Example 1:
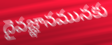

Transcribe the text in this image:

దైవజ్ఞానమునకు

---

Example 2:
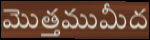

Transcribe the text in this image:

మొత్తముమీద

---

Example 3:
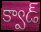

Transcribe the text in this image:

క్వాడ్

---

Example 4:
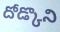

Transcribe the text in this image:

దోడ్కొని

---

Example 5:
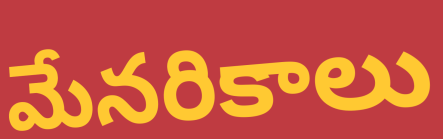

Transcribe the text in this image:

మేనరికాలు